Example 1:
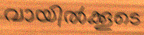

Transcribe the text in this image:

വായിൽക്കൂടെ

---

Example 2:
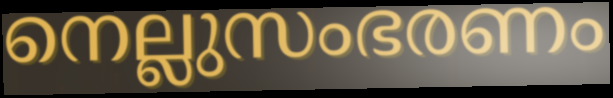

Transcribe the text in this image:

നെല്ലുസംഭരണം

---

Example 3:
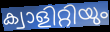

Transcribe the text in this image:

ക്വാളിറ്റിയും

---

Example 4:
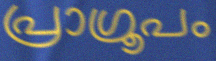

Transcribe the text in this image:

പ്രാഗ്രൂപം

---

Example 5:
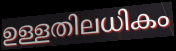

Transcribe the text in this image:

ഉള്ളതിലധികം